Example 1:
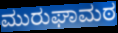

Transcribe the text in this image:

ಮುರುಘಾಮಠ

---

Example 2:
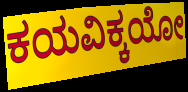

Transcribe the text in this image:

ಕಯವಿಕ್ಕಯೋ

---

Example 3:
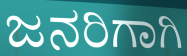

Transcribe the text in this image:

ಜನರಿಗಾಗಿ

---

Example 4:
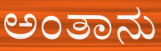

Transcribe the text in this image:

ಅಂತಾನು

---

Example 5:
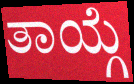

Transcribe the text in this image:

ತಾಯ್ಗೆ